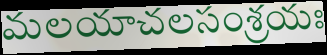
మలయాచలసంశ్రయః